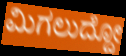
ಮಿಗಲುದ್ದೋ